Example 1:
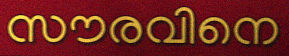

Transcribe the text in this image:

സൗരവിനെ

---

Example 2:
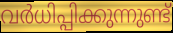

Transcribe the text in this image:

വർധിപ്പിക്കുന്നുണ്ട്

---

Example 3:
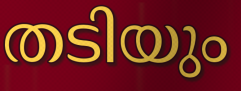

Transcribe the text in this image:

തടിയും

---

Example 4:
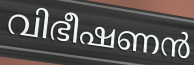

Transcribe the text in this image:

വിഭീഷണൻ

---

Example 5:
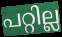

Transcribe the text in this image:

പറ്റില്ല